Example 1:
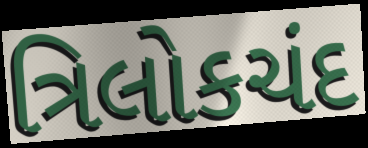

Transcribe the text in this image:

ત્રિલોકચંદ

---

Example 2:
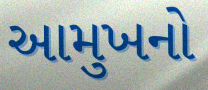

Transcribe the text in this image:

આમુખનો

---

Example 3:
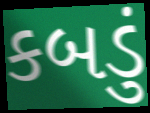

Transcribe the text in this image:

કબડું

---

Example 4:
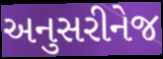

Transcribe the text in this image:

અનુસરીનેજ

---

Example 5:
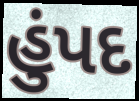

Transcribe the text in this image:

હુંપદ